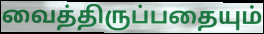
வைத்திருப்பதையும்